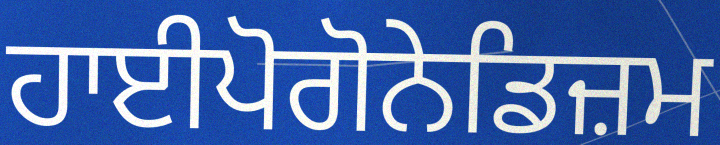
ਹਾਈਪੋਗੋਨੇਡਿਜ਼ਮ